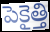
పెకైత్తి